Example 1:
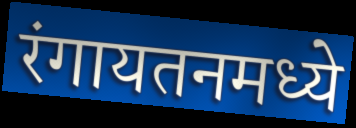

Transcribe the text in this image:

रंगायतनमध्ये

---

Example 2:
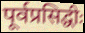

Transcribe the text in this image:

पूर्वप्रसिद्धीः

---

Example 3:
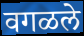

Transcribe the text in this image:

वगळले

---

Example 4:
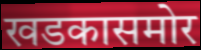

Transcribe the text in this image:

खडकासमोर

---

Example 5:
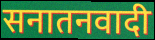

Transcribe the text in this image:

सनातनवादी